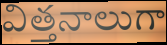
విత్తనాలుగా